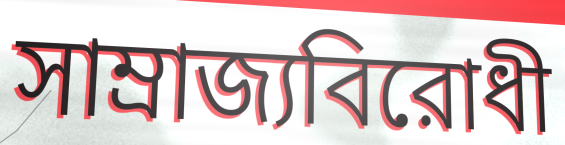
সাম্রাজ্যবিরোধী